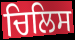
ਚਿਲਿਸ